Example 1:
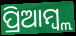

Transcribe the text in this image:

ପ୍ରିଆମ୍ବ୍ଲ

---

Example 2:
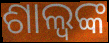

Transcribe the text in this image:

ଶାଲ୍ୱଙ୍କ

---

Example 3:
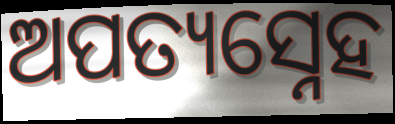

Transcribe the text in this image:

ଅପତ୍ୟସ୍ନେହ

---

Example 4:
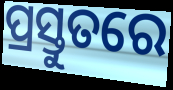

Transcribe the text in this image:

ପ୍ରସ୍ତୁତରେ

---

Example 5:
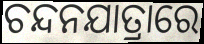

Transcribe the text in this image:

ଚନ୍ଦନଯାତ୍ରାରେ